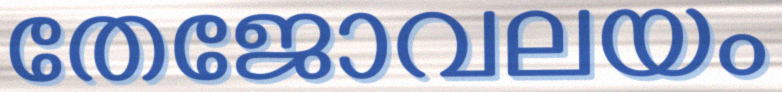
തേജോവലയം